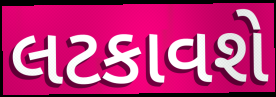
લટકાવશે